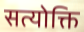
सत्योक्ति